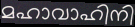
മഹാവാഹിനി